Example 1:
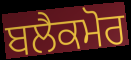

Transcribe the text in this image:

ਬਲੈਕਮੋਰ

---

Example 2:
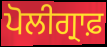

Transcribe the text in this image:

ਪੋਲੀਗ੍ਰਾਫ਼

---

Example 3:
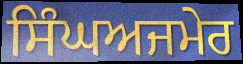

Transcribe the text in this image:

ਸਿੰਘਅਜਮੇਰ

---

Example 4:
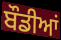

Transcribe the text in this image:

ਬੌਡੀਆਂ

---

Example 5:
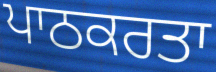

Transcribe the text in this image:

ਪਾਠਕਰਤਾ